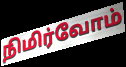
நிமிர்வோம்